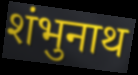
शंभुनाथ